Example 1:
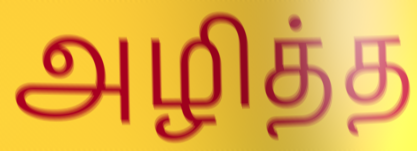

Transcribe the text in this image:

அழித்த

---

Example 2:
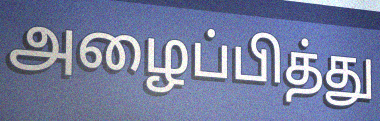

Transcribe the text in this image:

அழைப்பித்து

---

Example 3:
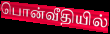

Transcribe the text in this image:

பொன்வீதியில்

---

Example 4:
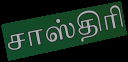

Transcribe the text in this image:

சாஸ்திரி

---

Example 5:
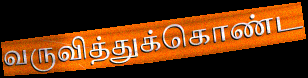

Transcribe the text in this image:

வருவித்துக்கொண்ட